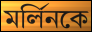
মর্লিনকে